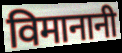
विमानानी